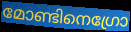
മോണ്ടിനെഗ്രോ